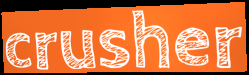
crusher